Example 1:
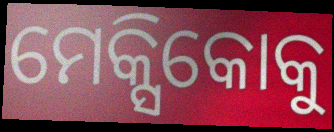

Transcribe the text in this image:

ମେକ୍ସିକୋକୁ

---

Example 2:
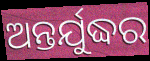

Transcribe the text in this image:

ଅନ୍ତର୍ଯୁଦ୍ଧର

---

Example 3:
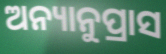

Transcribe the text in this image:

ଅନ୍ୟାନୁପ୍ରାସ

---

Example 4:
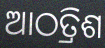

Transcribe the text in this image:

ଆଠତ୍ରିଶ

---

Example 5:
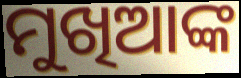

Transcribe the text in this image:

ମୁଖିଆଙ୍କ